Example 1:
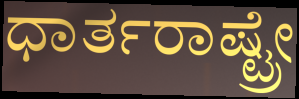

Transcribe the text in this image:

ಧಾರ್ತರಾಷ್ಟ್ರೇ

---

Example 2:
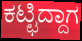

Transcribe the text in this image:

ಕಟ್ಟಿದ್ದಾಗ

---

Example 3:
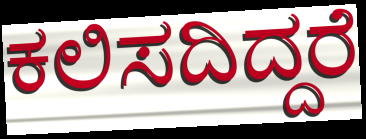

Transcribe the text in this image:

ಕಲಿಸದಿದ್ದರೆ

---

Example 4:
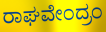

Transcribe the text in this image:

ರಾಘವೇಂದ್ರಂ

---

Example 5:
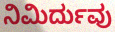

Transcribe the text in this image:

ನಿಮಿರ್ದುವು